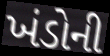
ખંડોની